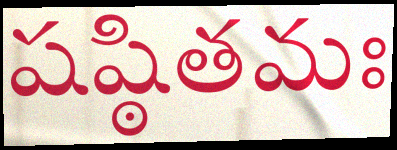
షష్ఠితమః